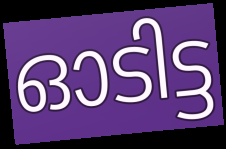
ഓടിട്ട